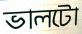
ভালটো